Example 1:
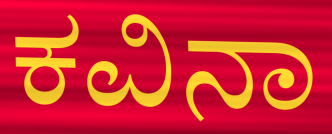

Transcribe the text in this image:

ಕವಿನಾ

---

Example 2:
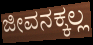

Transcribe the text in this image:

ಜೀವನಕ್ಕಲ್ಲ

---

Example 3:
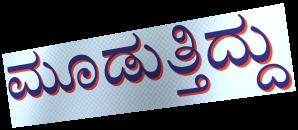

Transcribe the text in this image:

ಮೂಡುತ್ತಿದ್ದು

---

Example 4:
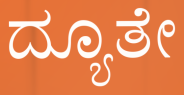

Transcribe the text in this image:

ದ್ಯೂತೇ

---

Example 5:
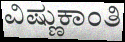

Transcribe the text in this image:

ವಿಷ್ಣುಕಾಂತಿ